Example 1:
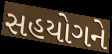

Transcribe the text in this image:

સહયોગને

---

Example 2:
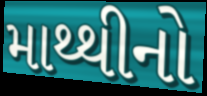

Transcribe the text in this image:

માથ્થીનો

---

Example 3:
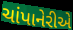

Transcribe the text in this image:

ચાંપાનેરીએ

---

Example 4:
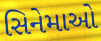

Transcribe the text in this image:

સિનેમાઓ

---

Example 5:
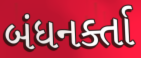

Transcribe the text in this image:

બંધનર્ક્તા